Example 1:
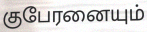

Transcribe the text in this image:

குபேரனையும்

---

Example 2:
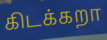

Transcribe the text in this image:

கிடக்கறா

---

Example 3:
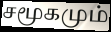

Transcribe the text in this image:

சமூகமும்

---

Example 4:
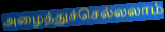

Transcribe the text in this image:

அழைத்துச்செல்லலாம்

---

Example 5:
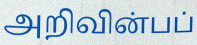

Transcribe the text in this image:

அறிவின்பப்